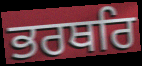
ਭਰਥਰਿ